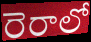
రెరాలో